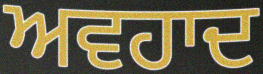
ਅਵਹਾਦ